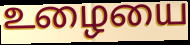
உழையை